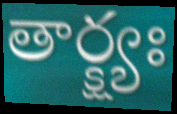
తార్క్ష్యః